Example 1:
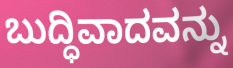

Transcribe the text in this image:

ಬುದ್ಧಿವಾದವನ್ನು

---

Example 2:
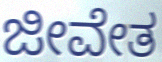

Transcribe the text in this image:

ಜೀವೇತ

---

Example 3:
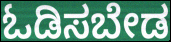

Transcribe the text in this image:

ಓಡಿಸಬೇಡ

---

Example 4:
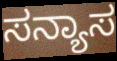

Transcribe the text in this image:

ಸನ್ಯಾಸ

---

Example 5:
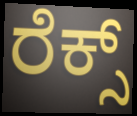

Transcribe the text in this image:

ರೆಕ್ಸ್